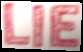
LIE